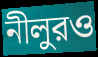
নীলুরও